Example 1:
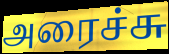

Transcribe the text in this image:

அரைச்சு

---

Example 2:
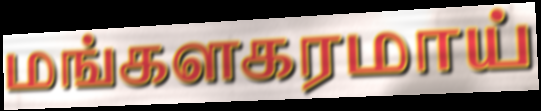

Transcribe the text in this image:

மங்களகரமாய்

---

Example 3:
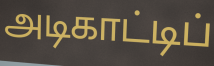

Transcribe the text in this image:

அடிகாட்டிப்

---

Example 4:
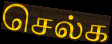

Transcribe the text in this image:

செல்க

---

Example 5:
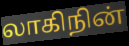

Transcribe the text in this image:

லாகிநின்